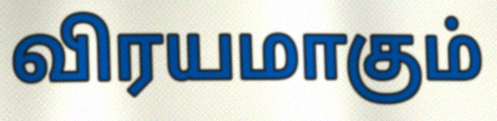
விரயமாகும்